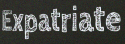
Expatriate